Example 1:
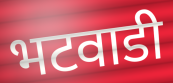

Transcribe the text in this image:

भटवाडी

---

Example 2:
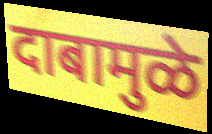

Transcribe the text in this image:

दाबामुळे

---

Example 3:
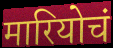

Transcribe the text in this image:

मारियोचं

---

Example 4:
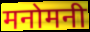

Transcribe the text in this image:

मनोमनी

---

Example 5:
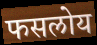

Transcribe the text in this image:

फसलोय